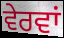
ਵੇਰਵਾਂ